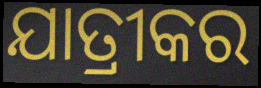
ଯାତ୍ରୀକର